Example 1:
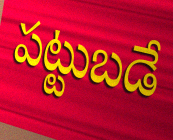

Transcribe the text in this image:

పట్టుబడే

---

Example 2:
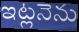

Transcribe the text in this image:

ఇట్లనెను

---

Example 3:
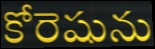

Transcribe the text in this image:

కోరెషును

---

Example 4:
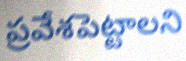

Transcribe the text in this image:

ప్రవేశపెట్టాలని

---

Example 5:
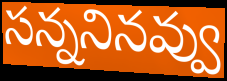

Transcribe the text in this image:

సన్ననినవ్వు